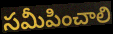
సమీపించాలి